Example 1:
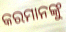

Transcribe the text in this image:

କରମାନଙ୍କୁ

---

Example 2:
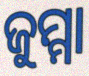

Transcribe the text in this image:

ଜୁମ୍ମା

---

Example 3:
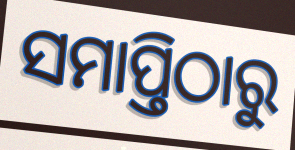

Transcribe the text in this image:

ସମାପ୍ତିଠାରୁ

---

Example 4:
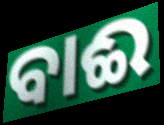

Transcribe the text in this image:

ବାଈ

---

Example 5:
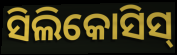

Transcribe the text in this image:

ସିଲିକୋସିସ୍